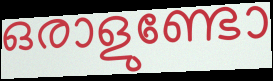
ഒരാളുണ്ടോ